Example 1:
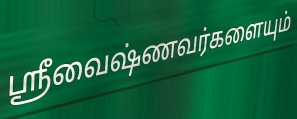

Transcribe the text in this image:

ஸ்ரீவைஷ்ணவர்களையும்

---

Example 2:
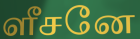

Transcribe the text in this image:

ளீசனே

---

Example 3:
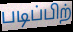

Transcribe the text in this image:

படிப்பிற்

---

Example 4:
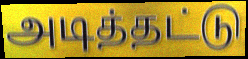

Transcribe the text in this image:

அடித்தட்டு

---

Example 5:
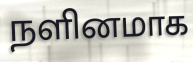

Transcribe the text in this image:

நளினமாக